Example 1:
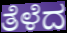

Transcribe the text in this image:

ತೆಳೆದ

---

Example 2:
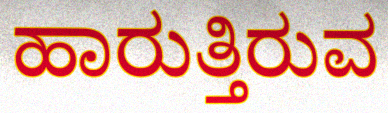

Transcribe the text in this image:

ಹಾರುತ್ತಿರುವ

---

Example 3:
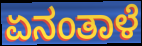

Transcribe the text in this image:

ಏನಂತಾಳೆ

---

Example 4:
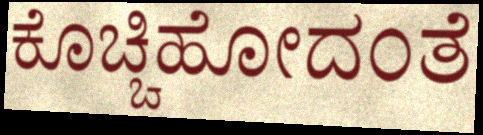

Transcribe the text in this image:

ಕೊಚ್ಚಿಹೋದಂತೆ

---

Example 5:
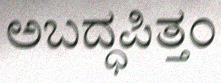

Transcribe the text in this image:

ಅಬದ್ಧಪಿತ್ತಂ